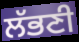
ਲੱਭਣੀ